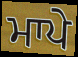
ਮਾਪੇ